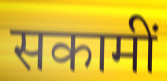
सकामीं